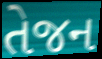
તેજન